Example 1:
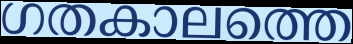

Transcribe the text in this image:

ഗതകാലത്തെ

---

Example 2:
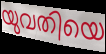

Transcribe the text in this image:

യുവതിയെ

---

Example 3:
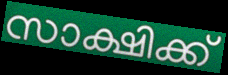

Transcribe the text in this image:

സാക്ഷിക്ക്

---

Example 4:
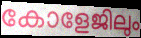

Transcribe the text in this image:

കോളേജിലും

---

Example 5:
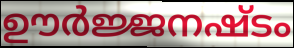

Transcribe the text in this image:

ഊർജ്ജനഷ്ടം